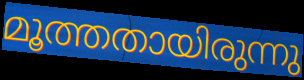
മൂത്തതായിരുന്നു